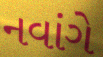
નવાંગે